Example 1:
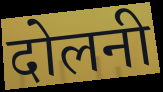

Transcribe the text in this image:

दोलनी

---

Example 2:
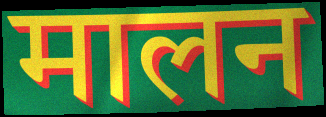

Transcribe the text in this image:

मालन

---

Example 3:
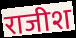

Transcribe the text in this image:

राजीश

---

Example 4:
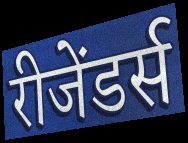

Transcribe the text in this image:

रीजेंडर्स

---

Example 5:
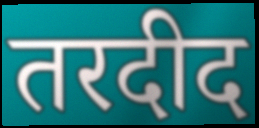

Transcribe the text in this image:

तरदीद